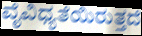
ವೈವಿಧ್ಯತೆಯಿರುತ್ತದೆ